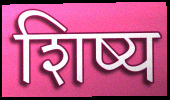
शिष्य